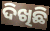
ଦିଖିଛି